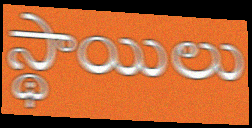
స్థాయిలు